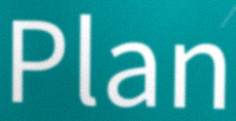
Plan